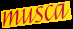
musca